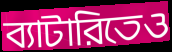
ব্যাটারিতেও